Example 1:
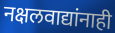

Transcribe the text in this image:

नक्षलवाद्यांनाही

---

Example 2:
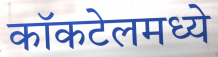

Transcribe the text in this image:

कॉकटेलमध्ये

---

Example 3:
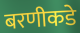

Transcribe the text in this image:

बरणीकडे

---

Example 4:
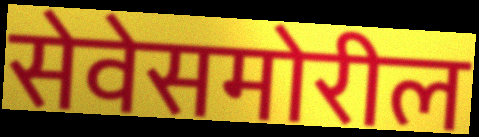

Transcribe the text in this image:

सेवेसमोरील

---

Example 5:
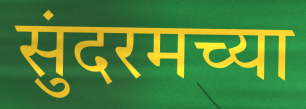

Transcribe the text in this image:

सुंदरमच्या